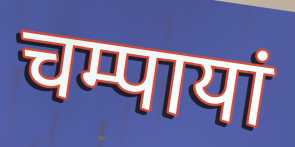
चम्पायां